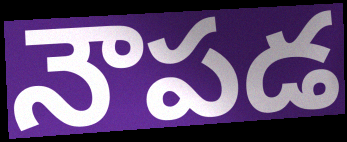
నౌపడ